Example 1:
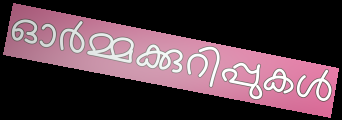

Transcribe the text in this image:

ഓർമ്മക്കുറിപ്പുകൾ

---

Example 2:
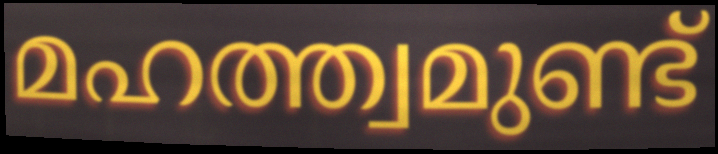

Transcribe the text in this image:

മഹത്ത്വമുണ്ട്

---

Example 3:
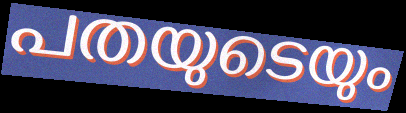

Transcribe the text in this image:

പതയുടെയും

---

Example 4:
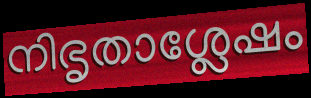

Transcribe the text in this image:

നിഭൃതാശ്ലേഷം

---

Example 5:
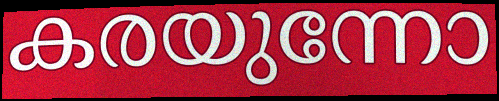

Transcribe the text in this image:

കരയുന്നോ